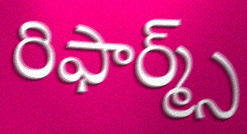
రిఫార్మ్స్